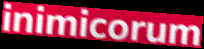
inimicorum